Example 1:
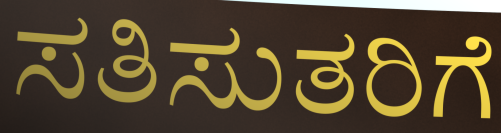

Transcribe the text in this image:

ಸತಿಸುತರಿಗೆ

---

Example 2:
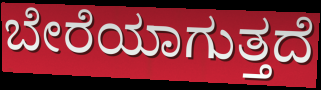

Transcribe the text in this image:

ಬೇರೆಯಾಗುತ್ತದೆ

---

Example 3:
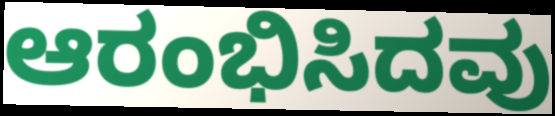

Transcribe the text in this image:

ಆರಂಭಿಸಿದವು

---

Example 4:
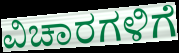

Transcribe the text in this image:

ವಿಚಾರಗಳಿಗೆ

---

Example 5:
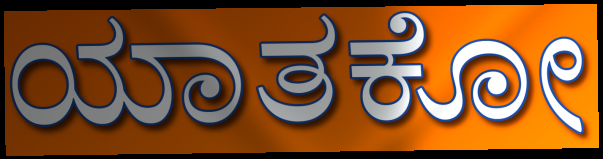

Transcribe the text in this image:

ಯಾತಕೋ